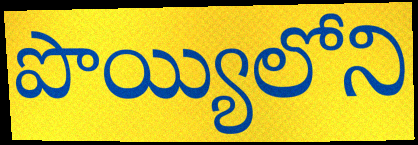
పొయ్యిలోని